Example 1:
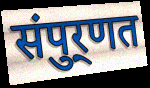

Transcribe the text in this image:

संपुर्णत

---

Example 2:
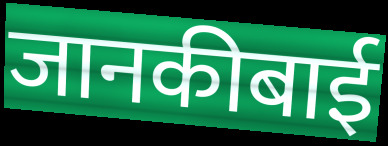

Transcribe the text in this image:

जानकीबाई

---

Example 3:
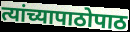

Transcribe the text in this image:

त्यांच्यापाठोपाठ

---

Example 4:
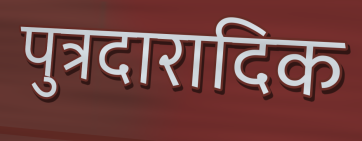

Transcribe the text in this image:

पुत्रदारादिक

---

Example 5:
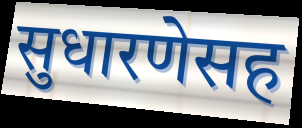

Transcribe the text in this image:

सुधारणेसह